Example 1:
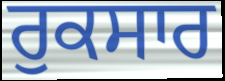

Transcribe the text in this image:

ਰੁਕਸਾਰ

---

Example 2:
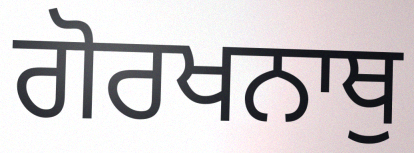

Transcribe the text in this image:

ਗੋਰਖਨਾਥੁ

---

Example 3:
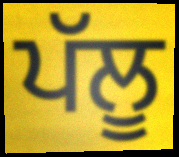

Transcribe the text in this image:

ਪੱਲੂ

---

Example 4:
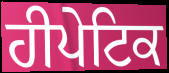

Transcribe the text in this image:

ਹੀਪੇਟਿਕ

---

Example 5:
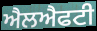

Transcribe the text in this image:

ਐਲਐਫਟੀ